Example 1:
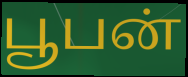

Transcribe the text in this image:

பூபன்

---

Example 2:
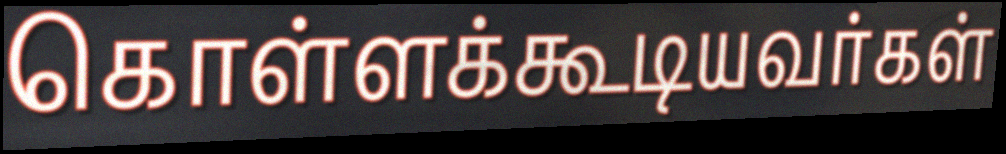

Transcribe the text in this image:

கொள்ளக்கூடியவர்கள்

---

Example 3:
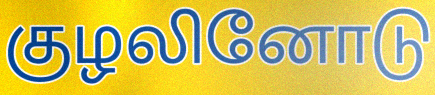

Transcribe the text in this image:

குழலினோடு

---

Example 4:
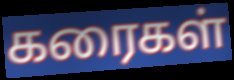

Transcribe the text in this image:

கரைகள்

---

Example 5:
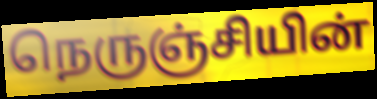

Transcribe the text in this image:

நெருஞ்சியின்